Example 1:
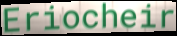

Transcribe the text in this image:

Eriocheir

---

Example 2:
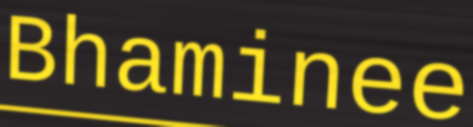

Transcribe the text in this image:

Bhaminee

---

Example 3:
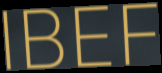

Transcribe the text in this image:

IBEF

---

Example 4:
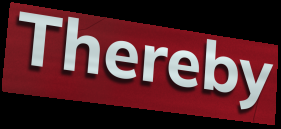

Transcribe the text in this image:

Thereby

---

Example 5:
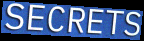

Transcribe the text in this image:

SECRETS